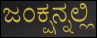
ಜಂಕ್ಷನ್ನಲ್ಲಿ